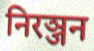
निरञ्जन